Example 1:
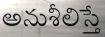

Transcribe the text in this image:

అనుశీలిస్తే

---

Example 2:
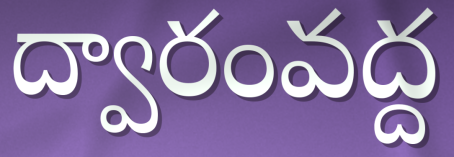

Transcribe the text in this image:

ద్వారంవద్ద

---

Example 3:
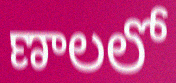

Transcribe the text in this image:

ణాలలో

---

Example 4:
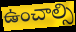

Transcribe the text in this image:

ఉంచాల్సి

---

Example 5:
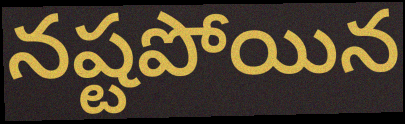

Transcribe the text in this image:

నష్టపోయిన